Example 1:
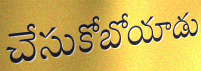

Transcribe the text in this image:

చేసుకోబోయాడు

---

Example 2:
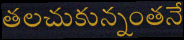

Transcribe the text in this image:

తలచుకున్నంతనే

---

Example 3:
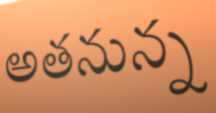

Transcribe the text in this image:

అతనున్న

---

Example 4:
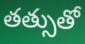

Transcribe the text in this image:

తత్సుతో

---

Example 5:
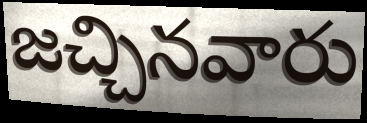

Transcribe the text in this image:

జచ్చినవారు